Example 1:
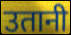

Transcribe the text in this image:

उतानी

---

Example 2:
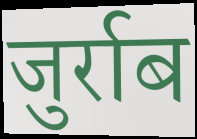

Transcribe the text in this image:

जुर्राब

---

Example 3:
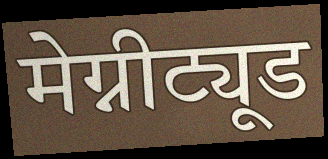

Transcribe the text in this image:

मेग्नीट्यूड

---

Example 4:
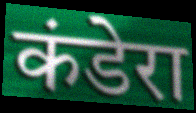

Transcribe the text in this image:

कंडेरा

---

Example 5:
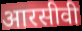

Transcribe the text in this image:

आरसीवी